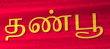
தண்பூ